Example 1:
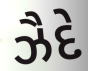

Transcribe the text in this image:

ઝૈદે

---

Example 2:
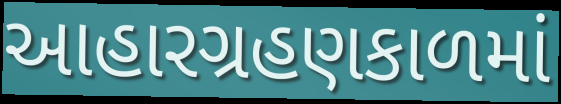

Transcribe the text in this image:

આહારગ્રહણકાળમાં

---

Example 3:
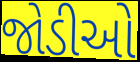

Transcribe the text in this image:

જોડીઓ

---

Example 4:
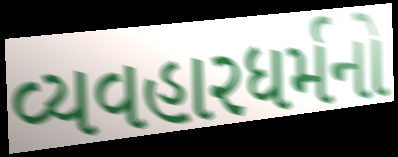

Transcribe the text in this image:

વ્યવહારધર્મનો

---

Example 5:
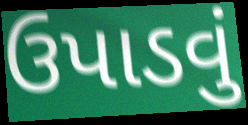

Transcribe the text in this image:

ઉપાડવું